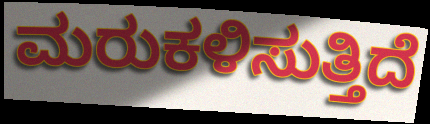
ಮರುಕಳಿಸುತ್ತಿದೆ